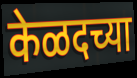
केळदच्या